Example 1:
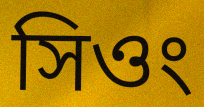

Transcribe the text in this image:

সিওং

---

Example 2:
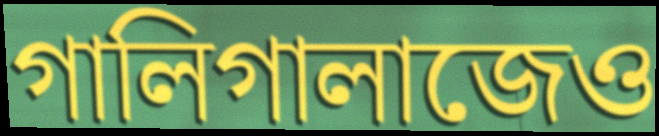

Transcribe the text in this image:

গালিগালাজেও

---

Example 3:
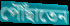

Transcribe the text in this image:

পৌঁছাতেন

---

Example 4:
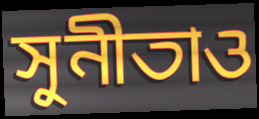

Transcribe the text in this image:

সুনীতাও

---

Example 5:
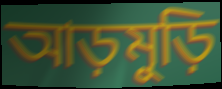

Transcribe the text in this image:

আড়মুড়ি